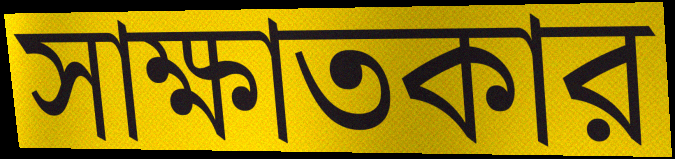
সাক্ষাতকার